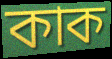
কাক